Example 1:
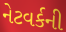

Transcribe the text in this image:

નેટવર્કની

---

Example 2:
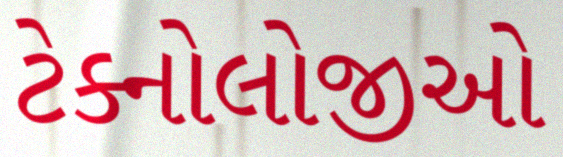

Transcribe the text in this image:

ટેક્નોલોજીઓ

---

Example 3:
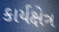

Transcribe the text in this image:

કાર્યક્ષેત્ર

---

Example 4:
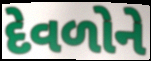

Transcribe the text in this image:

દેવળોને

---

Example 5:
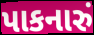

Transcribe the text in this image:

પાકનારું